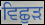
ਵਿਛੁੜ